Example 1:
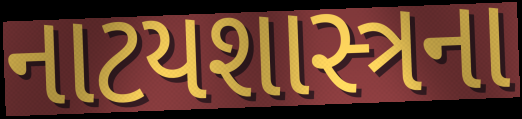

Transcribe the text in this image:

નાટયશાસ્ત્રના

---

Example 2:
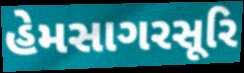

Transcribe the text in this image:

હેમસાગરસૂરિ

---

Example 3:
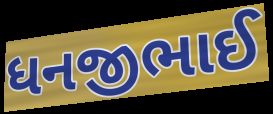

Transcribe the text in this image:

ધનજીભાઈ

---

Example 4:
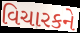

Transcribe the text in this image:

વિચારકને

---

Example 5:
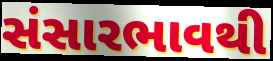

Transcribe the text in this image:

સંસારભાવથી